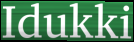
Idukki